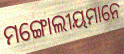
ମଙ୍ଗୋଲୀୟମାନେ